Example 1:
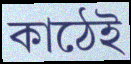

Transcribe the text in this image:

কাঠেই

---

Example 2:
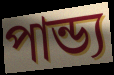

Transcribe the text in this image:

পান্ড্য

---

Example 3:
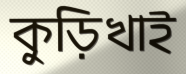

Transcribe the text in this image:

কুড়িখাই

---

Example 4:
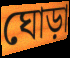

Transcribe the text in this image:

ঘোড়া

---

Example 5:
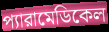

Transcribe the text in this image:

প্যারামেডিকেল